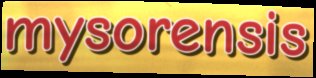
mysorensis